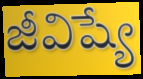
జీవిష్యే